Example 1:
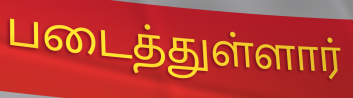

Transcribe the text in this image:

படைத்துள்ளார்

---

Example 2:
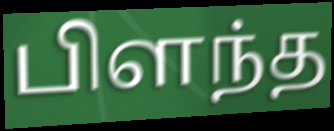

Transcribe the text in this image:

பிளந்த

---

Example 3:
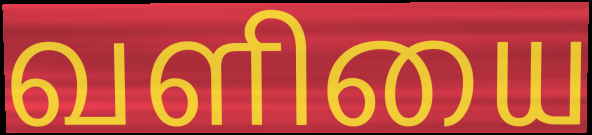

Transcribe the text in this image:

வளியை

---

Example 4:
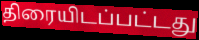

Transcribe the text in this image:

திரையிடப்பட்டது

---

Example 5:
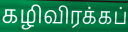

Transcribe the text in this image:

கழிவிரக்கப்